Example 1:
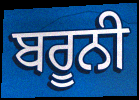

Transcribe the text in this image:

ਬਰੂਨੀ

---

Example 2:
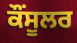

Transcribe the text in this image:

ਕੌਂਸੂਲਰ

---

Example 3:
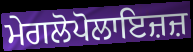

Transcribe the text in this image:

ਮੇਗਲੋਪੋਲਾਇਜ਼ਜ਼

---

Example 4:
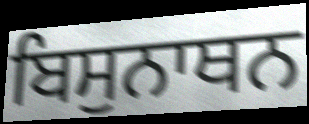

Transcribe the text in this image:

ਬਿਸੁਨਾਥਨ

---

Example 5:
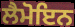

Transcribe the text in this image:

ਲੈਮੋਇਨ